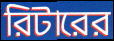
রিটারের